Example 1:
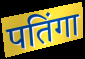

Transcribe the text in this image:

पतिंगा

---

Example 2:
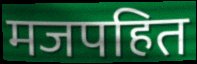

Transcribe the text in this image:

मजपहित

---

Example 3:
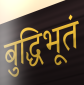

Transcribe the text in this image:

बुद्धिभूतं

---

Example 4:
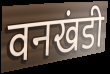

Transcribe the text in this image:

वनखंडी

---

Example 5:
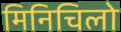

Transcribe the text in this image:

मिनिचिलो